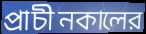
প্রাচীনকালের